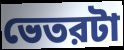
ভেতরটা